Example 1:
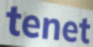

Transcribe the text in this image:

tenet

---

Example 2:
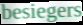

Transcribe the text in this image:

besiegers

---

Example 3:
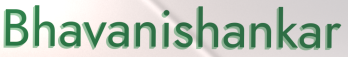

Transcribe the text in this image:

Bhavanishankar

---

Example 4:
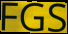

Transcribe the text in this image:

FGS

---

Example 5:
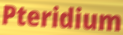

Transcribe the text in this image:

Pteridium